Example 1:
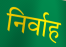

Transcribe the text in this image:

निर्वाह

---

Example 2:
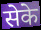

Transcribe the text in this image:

सेके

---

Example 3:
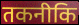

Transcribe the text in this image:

तकनीकि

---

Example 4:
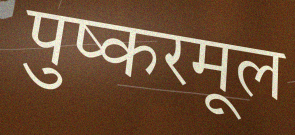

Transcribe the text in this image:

पुष्करमूल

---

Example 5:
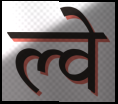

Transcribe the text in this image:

ल्वे